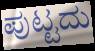
ಪುಟ್ಟದು